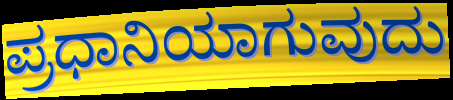
ಪ್ರಧಾನಿಯಾಗುವುದು